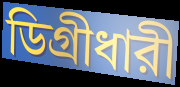
ডিগ্রীধারী